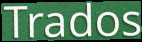
Trados